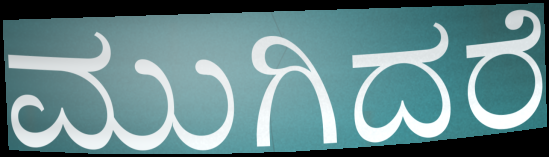
ಮುಗಿದರೆ